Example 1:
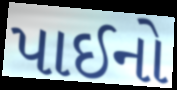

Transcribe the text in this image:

પાઈનો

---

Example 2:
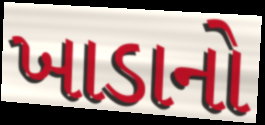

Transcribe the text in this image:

ખાડાનો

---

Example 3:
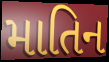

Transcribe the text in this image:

માતિન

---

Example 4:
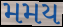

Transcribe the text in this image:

મમય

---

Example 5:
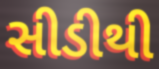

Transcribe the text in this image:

સીડીથી